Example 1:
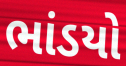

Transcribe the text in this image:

ભાંડયો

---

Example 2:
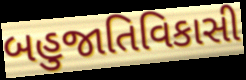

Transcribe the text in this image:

બહુજાતિવિકાસી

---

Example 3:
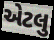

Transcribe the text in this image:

એટલુ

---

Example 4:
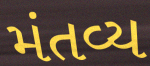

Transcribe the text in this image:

મંતવ્ય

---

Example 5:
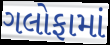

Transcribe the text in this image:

ગલોફામાં